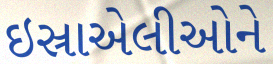
ઇસ્રાએલીઓને